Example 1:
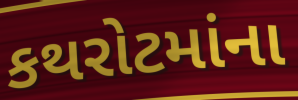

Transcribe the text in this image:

કથરોટમાંના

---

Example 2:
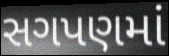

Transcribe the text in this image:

સગપણમાં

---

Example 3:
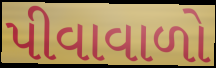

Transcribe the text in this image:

પીવાવાળો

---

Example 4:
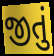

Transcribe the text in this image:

જીતું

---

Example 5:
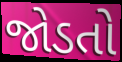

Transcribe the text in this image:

જોડતો